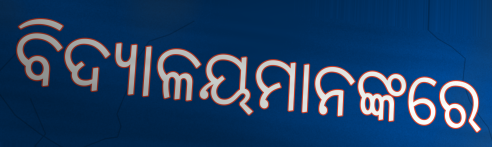
ବିଦ୍ୟାଳୟମାନଙ୍କରେ